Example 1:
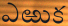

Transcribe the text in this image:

ఎఱుక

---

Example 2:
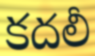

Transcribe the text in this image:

కదలీ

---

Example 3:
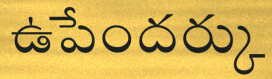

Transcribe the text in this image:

ఉపేందర్కు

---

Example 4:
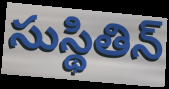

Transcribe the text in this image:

సుస్థితిన్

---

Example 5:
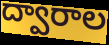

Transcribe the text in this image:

ద్వారాల